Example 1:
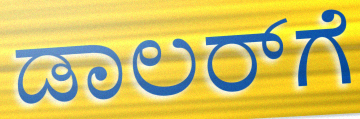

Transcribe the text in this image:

ಡಾಲರ್‌ಗೆ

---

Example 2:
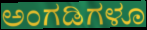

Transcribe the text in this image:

ಅಂಗಡಿಗಳೂ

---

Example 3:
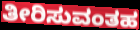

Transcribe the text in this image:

ತೀರಿಸುವಂತಹ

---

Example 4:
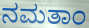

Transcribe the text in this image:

ನಮತಾಂ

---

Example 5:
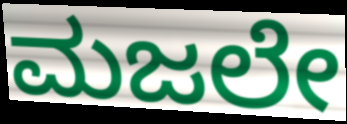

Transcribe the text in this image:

ಮಜಲೇ